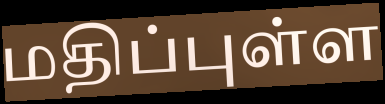
மதிப்புள்ள